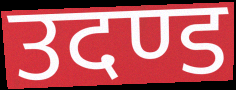
उदण्ड